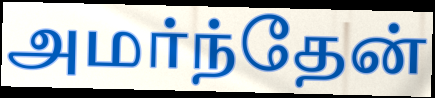
அமர்ந்தேன்